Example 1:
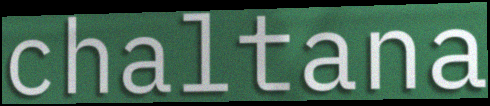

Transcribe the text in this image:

chaltana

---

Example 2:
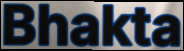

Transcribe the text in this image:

Bhakta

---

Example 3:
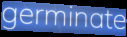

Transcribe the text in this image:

germinate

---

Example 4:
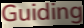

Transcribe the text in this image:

Guiding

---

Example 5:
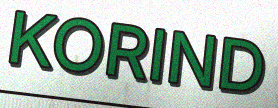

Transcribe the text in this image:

KORIND